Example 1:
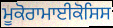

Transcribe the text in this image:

ਮੂਕੋਰਾਮਾਈਕੋਸਿਸ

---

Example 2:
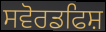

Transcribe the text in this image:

ਸਵੋਰਡਫਿਸ਼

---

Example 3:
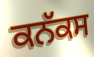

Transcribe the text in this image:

ਕਨੱਕਸ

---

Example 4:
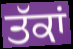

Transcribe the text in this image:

ਤੱਕਾਂ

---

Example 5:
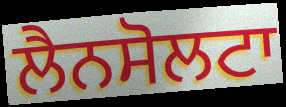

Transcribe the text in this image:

ਲੈਨਸੋਲਟਾ